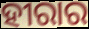
ହୀରାର